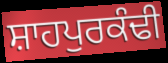
ਸ਼ਾਹਪੁਰਕੰਢੀ